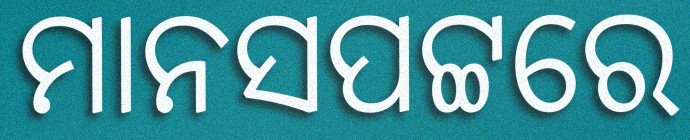
ମାନସପଟ୍ଟରେ